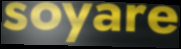
soyare